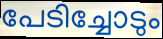
പേടിച്ചോടും